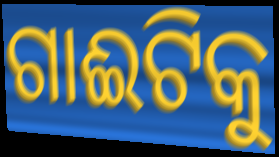
ଗାଈଟିକୁ